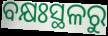
ବକ୍ଷଃସ୍ଥଳରୁ